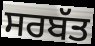
ਸਰਬੱਤ